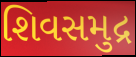
શિવસમુદ્ર